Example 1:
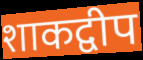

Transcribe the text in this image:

शाकद्वीप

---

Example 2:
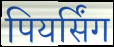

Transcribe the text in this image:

पियर्सिंग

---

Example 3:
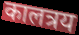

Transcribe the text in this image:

कालत्रय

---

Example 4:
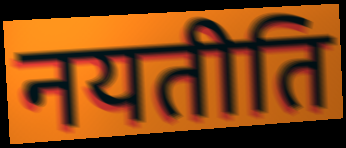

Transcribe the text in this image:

नयतीति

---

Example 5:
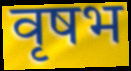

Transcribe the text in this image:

वृषभ